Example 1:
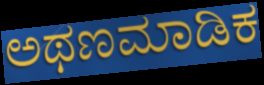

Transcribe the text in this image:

ಅಥಣಮಾಡಿಕ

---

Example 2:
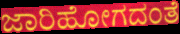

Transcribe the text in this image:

ಜಾರಿಹೋಗದಂತೆ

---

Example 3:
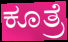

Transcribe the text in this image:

ಕೂತ್ರೆ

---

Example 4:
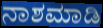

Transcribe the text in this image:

ನಾಶಮಾಡಿ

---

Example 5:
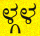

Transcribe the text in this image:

ಳ್ಗಳ